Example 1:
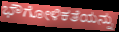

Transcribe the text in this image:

ಭೌಗೋಳಿಕತೆಯನ್ನು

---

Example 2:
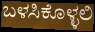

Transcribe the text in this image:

ಬಳಸಿಕೊಳ್ಳಲಿ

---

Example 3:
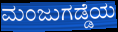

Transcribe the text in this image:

ಮಂಜುಗಡ್ಡೆಯ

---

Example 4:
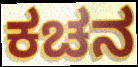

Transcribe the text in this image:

ಕಚನ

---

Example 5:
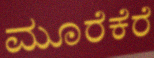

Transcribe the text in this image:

ಮೂರೆಕೆರೆ